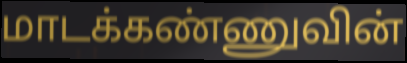
மாடக்கண்ணுவின்